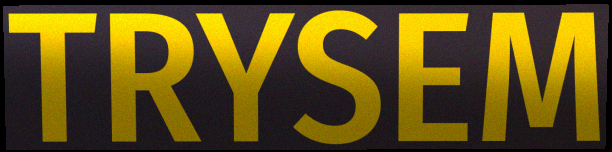
TRYSEM